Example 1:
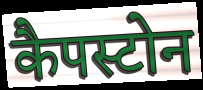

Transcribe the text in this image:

कैपस्टोन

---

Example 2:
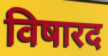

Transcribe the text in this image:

विषारद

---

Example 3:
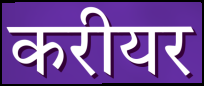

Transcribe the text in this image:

करीयर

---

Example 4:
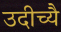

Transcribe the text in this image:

उदीच्यै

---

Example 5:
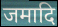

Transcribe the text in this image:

जमादि